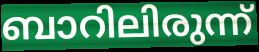
ബാറിലിരുന്ന്